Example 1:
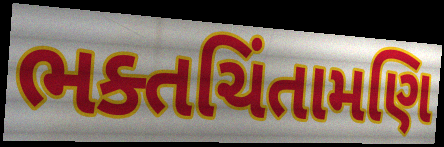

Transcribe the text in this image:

ભક્તચિંતામણિ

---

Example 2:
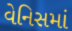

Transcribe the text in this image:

વેનિસમાં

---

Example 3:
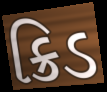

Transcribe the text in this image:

ક્રિડ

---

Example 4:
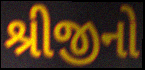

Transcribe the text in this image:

શ્રીજીનો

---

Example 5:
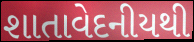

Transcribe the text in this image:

શાતાવેદનીયથી